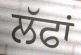
ਲੱਫਾਂ